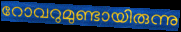
റോവറുമുണ്ടായിരുന്നു